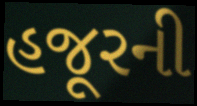
હજૂરની